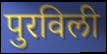
पुरविली